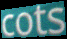
cots